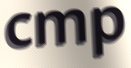
cmp